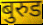
बुरुड